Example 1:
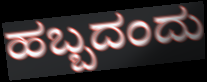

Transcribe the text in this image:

ಹಬ್ಬದಂದು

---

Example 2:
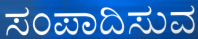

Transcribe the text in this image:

ಸಂಪಾದಿಸುವ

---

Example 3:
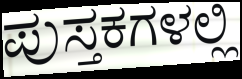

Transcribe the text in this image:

ಪುಸ್ತಕಗಳಲ್ಲಿ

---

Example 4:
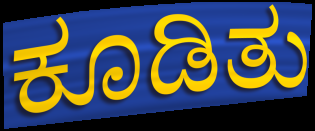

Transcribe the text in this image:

ಕೂಡಿತು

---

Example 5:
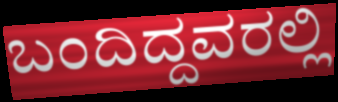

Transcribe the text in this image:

ಬಂದಿದ್ದವರಲ್ಲಿ